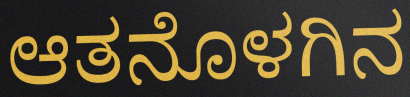
ಆತನೊಳಗಿನ